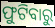
ଫୁଟିବାରୁ